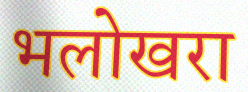
भलोखरा